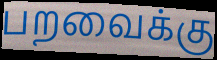
பறவைக்கு